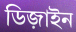
ডিজ়াইন